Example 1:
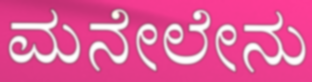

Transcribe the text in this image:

ಮನೇಲೇನು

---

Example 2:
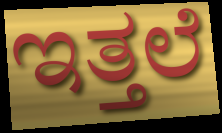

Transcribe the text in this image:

ಇತ್ತಲೆ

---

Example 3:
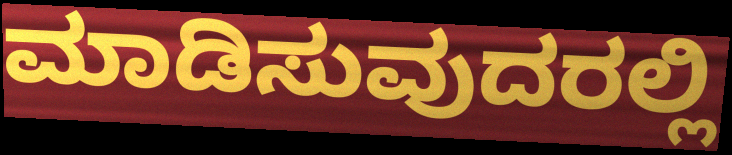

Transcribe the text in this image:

ಮಾಡಿಸುವುದರಲ್ಲಿ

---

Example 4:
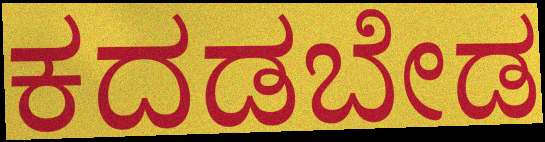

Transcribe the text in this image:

ಕದಡಬೇಡ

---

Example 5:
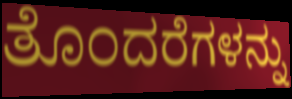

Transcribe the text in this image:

ತೊಂದರೆಗಳನ್ನು